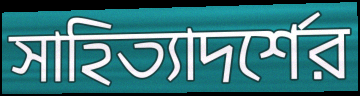
সাহিত্যাদর্শের